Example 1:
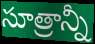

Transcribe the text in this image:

సూత్రాన్నీ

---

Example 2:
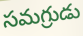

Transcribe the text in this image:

సమగ్రుడు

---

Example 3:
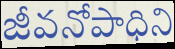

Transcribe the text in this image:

జీవనోపాధిని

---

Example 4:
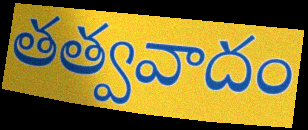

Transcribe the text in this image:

తత్వవాదం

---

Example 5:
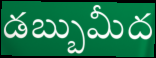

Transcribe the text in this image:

డబ్బుమీద